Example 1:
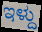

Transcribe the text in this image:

ಇಳ್ದು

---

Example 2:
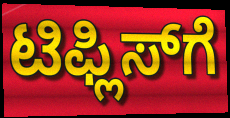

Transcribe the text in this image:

ಟಿಫ್ಲಿಸ್‍ಗೆ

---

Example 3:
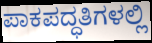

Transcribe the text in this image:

ಪಾಕಪದ್ಧತಿಗಳಲ್ಲಿ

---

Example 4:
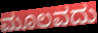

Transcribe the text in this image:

ಮೂಲವದು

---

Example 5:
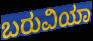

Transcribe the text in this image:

ಬರುವಿಯಾ